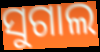
ସୁଗାଲ